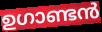
ഉഗാണ്ടൻ